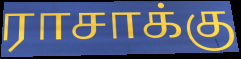
ராசாக்கு